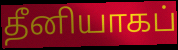
தீனியாகப்